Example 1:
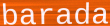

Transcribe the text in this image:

barada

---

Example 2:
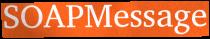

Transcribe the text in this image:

SOAPMessage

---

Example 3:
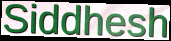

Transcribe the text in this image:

Siddhesh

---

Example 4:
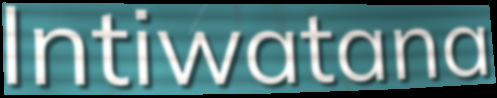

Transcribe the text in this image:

Intiwatana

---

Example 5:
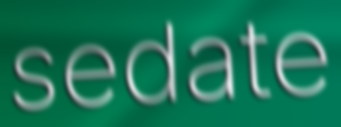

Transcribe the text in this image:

sedate